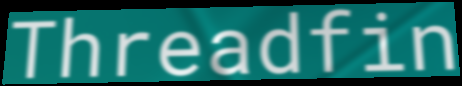
Threadfin